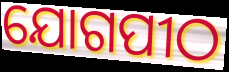
ଯୋଗପୀଠ